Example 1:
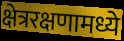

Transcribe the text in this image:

क्षेत्ररक्षणामध्ये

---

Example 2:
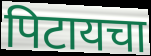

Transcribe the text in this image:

पिटायचा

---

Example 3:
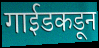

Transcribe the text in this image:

गाईडकडून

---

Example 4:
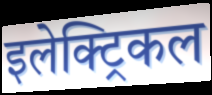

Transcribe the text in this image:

इलेक्ट्रिकल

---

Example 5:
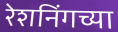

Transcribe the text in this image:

रेशनिंगच्या